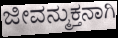
ಜೀವನ್ಮುಕ್ತನಾಗಿ